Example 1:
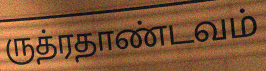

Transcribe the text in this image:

ருத்ரதாண்டவம்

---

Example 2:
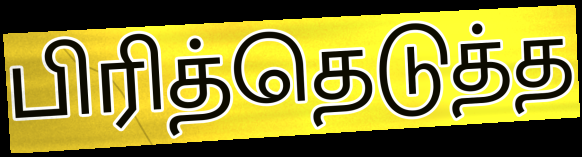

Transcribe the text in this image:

பிரித்தெடுத்த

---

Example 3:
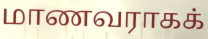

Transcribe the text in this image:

மாணவராகக்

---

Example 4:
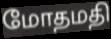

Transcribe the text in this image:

மோதமதி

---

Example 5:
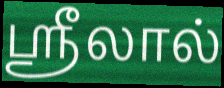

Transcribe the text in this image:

ஸ்ரீலால்